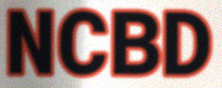
NCBD